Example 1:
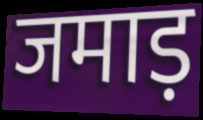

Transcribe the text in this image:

जमाड़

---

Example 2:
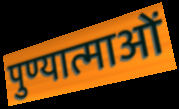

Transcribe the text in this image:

पुण्यात्माओं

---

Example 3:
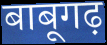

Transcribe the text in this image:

बाबूगढ़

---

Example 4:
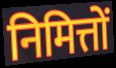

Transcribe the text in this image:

निमित्तों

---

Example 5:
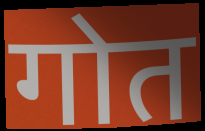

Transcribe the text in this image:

गोत